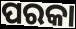
ପରକା